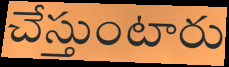
చేస్తుంటారు